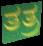
ತತ್ರ